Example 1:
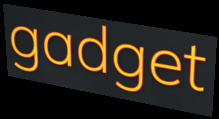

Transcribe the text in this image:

gadget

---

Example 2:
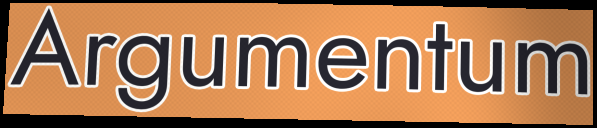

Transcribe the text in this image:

Argumentum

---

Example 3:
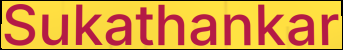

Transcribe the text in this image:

Sukathankar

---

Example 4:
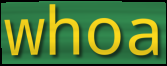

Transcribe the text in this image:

whoa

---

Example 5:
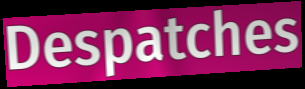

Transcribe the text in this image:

Despatches